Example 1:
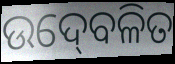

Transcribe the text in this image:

ଉଦ୍‍ବେଳିତ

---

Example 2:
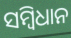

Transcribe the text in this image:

ସମ୍ୱିଧାନ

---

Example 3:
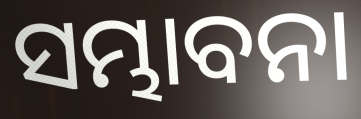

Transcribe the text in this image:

ସମ୍ଭାବନା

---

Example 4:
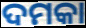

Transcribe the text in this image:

ଦମକା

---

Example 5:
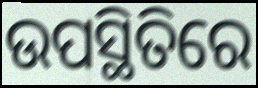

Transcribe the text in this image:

ଉପସ୍ଥିତିରେ